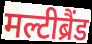
मल्टीब्रैंड